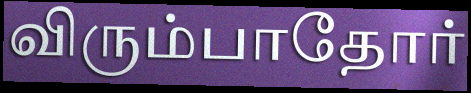
விரும்பாதோர்